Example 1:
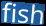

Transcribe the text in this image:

fish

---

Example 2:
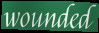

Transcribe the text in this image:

wounded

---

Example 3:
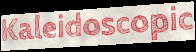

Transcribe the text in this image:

Kaleidoscopic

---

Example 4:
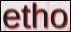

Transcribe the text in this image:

etho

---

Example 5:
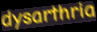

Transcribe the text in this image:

dysarthria